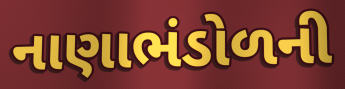
નાણાભંડોળની